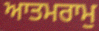
ਆਤਮਰਾਮੁ